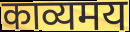
काव्यमय